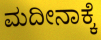
ಮದೀನಾಕ್ಕೆ